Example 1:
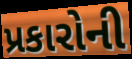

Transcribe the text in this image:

પ્રકારોની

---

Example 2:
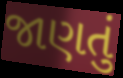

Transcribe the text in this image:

જાણતું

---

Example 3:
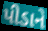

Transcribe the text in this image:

પીડાને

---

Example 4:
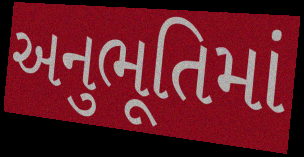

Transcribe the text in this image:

અનુભૂતિમાં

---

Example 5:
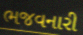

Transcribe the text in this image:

ભજવનારી